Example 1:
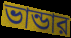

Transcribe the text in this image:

ভান্ডার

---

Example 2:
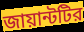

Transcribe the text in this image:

জায়ান্টটির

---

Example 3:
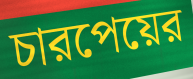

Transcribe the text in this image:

চারপেয়ের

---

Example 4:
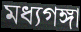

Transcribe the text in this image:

মধ্যগঙ্গা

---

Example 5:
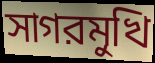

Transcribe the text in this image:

সাগরমুখি